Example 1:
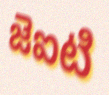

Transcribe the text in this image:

జెఐటి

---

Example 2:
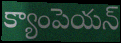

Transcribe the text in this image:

క్యాంపెయన్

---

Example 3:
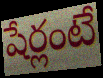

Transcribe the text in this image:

షేర్లంటే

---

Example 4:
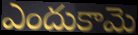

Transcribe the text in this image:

ఎందుకామె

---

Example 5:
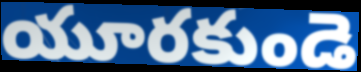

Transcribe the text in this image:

యూరకుండె